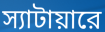
স্যাটায়ারে